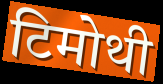
टिमोथी